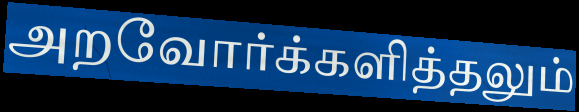
அறவோர்க்களித்தலும்